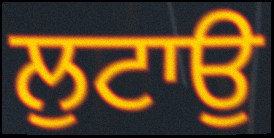
ਲੁਟਾਉ